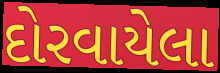
દોરવાયેલા